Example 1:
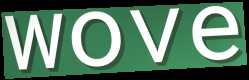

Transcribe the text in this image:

wove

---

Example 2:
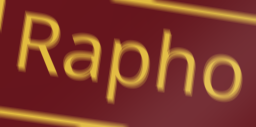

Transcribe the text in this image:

Rapho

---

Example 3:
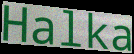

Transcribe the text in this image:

Halka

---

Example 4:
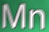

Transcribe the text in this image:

Mn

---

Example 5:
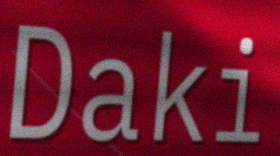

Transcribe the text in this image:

Daki